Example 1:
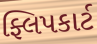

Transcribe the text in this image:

ફ્લિપકાર્ટ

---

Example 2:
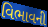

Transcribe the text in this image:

વિભાવની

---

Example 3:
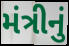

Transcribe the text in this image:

મંત્રીનું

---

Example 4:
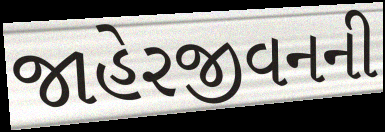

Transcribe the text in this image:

જાહેરજીવનની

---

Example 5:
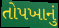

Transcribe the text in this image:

તોપખાનું